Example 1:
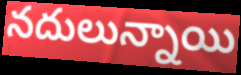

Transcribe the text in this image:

నదులున్నాయి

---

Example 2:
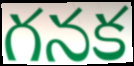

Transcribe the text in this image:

గనక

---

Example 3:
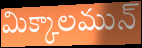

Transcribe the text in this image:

మిక్కాలమున్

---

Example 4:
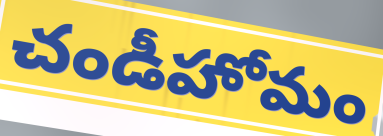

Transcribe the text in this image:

చండీహోమం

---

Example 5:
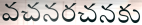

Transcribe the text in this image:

వచనరచనకు